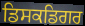
ਡਿਸਕਡਿਗਰ